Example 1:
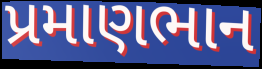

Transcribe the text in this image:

પ્રમાણભાન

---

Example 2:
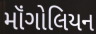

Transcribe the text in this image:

મૉંગોલિયન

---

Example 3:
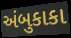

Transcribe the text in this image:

અંબુકાકા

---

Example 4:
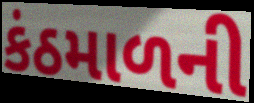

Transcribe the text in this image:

કંઠમાળની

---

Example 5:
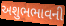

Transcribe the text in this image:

અશુભભાવની